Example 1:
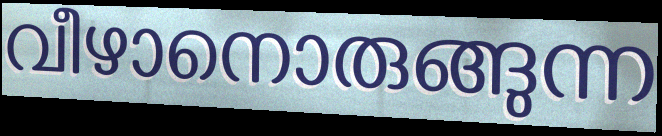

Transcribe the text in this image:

വീഴാനൊരുങ്ങുന്ന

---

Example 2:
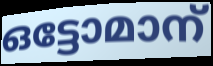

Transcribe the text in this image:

ഒട്ടോമാന്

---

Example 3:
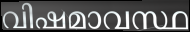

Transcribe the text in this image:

വിഷമാവസ്ഥ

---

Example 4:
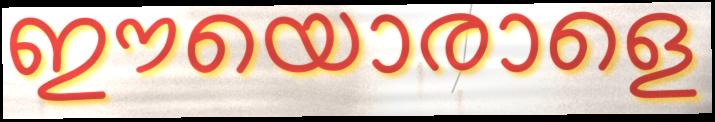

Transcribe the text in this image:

ഈയൊരാളെ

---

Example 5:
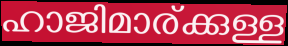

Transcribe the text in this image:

ഹാജിമാര്ക്കുള്ള